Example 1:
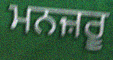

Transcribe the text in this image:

ਮਨਜ਼ਰੂ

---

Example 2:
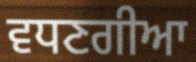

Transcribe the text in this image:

ਵਧਣਗੀਆ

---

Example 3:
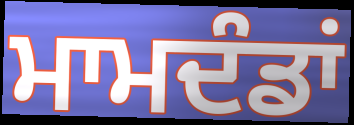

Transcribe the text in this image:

ਮਾਮਦੰਡਾਂ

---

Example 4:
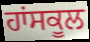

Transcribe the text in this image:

ਹਾਂਸਕੂਲ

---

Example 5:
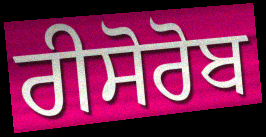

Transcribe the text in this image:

ਰੀਸੋਰੋਬ